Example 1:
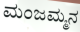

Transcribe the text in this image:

ಮಂಜಮ್ಮನ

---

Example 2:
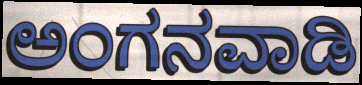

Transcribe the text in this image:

ಅಂಗನವಾಡಿ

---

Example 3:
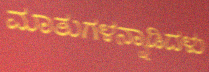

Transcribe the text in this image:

ಮಾತುಗಳನ್ನಾಡಿದಳು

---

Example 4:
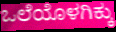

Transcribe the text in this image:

ಒಲೆಯೊಳಗಿಕ್ಕು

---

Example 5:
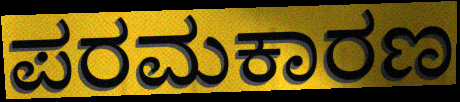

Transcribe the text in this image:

ಪರಮಕಾರಣ